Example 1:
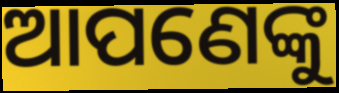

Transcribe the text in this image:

ଆପଣେଙ୍କୁ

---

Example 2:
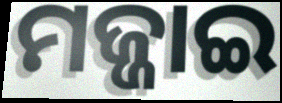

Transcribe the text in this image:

ମଜ୍ଜାଇ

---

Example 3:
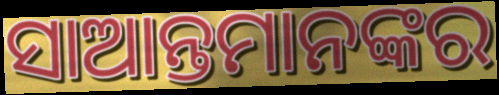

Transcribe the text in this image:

ସାଆନ୍ତମାନଙ୍କର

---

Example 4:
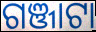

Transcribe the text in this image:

ଗଞ୍ଜାଟା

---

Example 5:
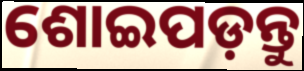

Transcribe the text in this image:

ଶୋଇପଡ଼ନ୍ତୁ